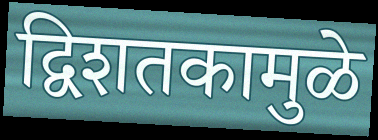
द्विशतकामुळे